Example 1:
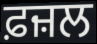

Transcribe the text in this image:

ਫ਼ਜ਼ਲ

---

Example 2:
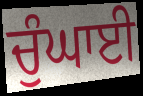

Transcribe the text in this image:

ਚੁੰਘਾਈ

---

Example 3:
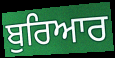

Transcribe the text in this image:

ਬੁਰਿਆਰ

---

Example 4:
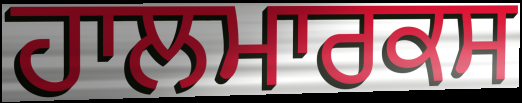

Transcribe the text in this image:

ਹਾਲਮਾਰਕਸ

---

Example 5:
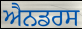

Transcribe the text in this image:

ਐਨਡਰਸ